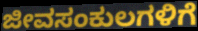
ಜೀವಸಂಕುಲಗಳಿಗೆ